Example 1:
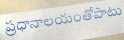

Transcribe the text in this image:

ప్రధానాలయంతోపాటు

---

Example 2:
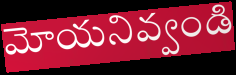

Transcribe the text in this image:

మోయనివ్వండి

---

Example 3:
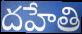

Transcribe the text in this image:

దహేతి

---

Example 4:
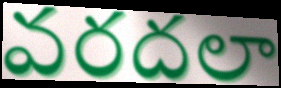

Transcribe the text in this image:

వరదలా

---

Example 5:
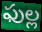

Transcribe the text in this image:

ఫుల్ల